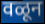
वळून